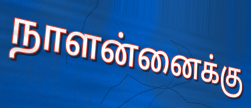
நாளன்னைக்கு